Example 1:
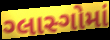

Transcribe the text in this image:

ગ્લાસ્ગોમાં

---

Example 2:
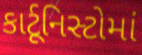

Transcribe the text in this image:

કાર્ટૂનિસ્ટોમાં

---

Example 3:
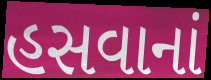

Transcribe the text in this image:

હસવાનાં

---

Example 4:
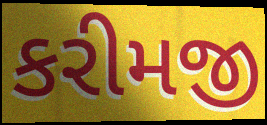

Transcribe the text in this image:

કરીમજી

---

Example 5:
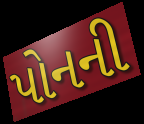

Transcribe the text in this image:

પોનની